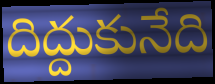
దిద్దుకునేది